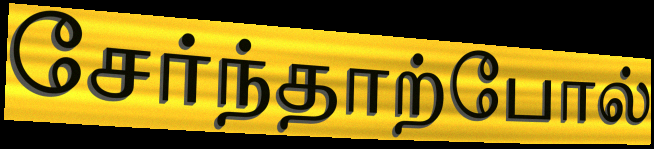
சேர்ந்தாற்போல்